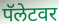
पॅलेटवर